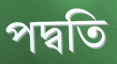
পদ্বতি